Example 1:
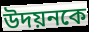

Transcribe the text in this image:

উদয়নকে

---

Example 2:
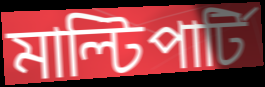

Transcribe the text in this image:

মাল্টিপার্টি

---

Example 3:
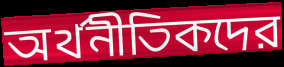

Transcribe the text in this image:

অর্থনীতিকদের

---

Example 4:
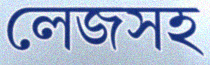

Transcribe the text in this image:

লেজসহ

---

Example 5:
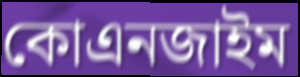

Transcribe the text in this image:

কোএনজাইম